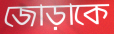
জোড়াকে